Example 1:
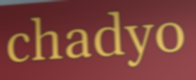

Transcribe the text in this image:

chadyo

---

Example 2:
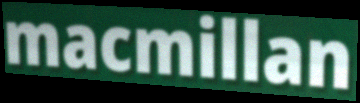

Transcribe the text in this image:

macmillan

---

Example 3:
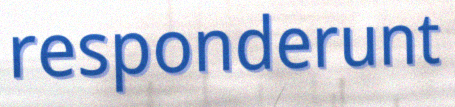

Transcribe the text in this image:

responderunt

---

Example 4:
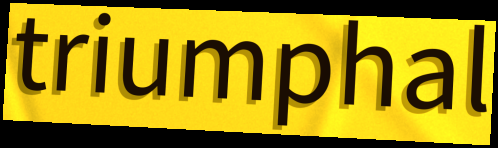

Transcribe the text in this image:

triumphal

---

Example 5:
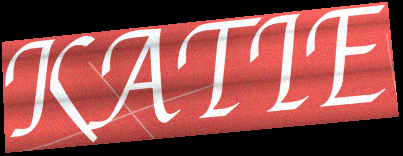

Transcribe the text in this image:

KATIE